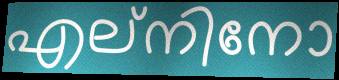
എല്നിനോ